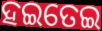
ହଇତେଇ